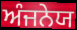
ਅੰਜਨੇਯ